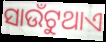
ସାଉଁଟୁଥାଏ